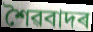
শৈৱবাদৰ